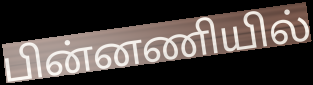
பின்னணியில்